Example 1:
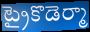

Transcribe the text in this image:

ట్రైకొడెర్మా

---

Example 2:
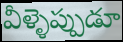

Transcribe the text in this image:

వీళ్ళెప్పుడూ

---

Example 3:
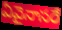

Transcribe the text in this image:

ఏవైనాసరే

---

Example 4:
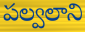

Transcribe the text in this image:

పల్వలాని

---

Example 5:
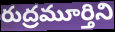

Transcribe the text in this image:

రుద్రమూర్తిని